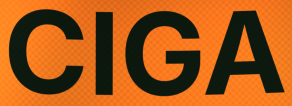
CIGA